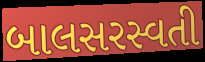
બાલસરસ્વતી